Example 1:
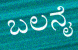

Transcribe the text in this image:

ಬಲನೈ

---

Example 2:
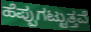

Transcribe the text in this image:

ಹೆಪ್ಪುಗಟ್ಟುತ್ತವೆ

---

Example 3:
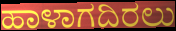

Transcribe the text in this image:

ಹಾಳಾಗದಿರಲು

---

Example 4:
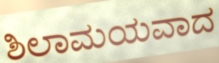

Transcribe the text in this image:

ಶಿಲಾಮಯವಾದ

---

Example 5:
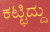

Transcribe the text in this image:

ಕಟ್ಟಿದ್ದು